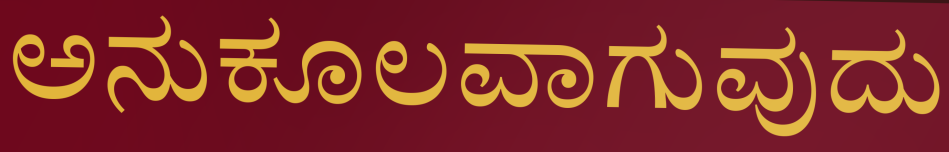
ಅನುಕೂಲವಾಗುವುದು